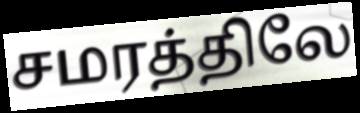
சமரத்திலே